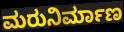
ಮರುನಿರ್ಮಾಣ